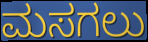
ಮಸಗಲು